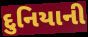
દુનિયાની